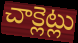
చాక్లెట్లు